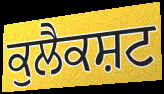
ਕੁਲੈਕਸ਼ਟ